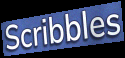
Scribbles